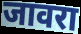
जावरा